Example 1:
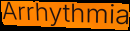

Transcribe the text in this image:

Arrhythmia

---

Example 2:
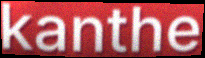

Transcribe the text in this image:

kanthe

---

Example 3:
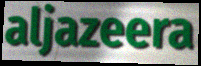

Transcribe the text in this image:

aljazeera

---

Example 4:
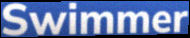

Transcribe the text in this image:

Swimmer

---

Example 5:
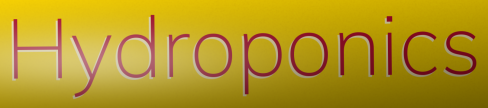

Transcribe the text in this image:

Hydroponics